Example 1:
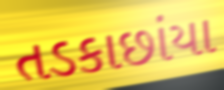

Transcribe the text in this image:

તડકાછાંયા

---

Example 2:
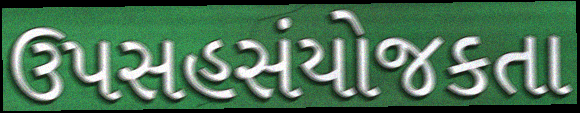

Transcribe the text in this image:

ઉપસહસંયોજકતા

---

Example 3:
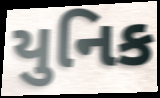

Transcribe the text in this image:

યુનિક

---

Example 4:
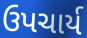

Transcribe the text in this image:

ઉપચાર્ય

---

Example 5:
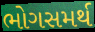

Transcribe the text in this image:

ભોગસમર્થ